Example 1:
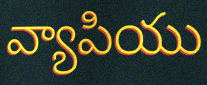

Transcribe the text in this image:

వ్యాపియు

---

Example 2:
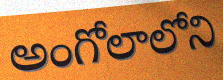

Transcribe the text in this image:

అంగోలాలోని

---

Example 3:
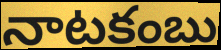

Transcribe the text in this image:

నాటకంబు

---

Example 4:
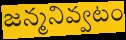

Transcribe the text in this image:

జన్మనివ్వటం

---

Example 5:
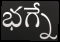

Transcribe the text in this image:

భగ్నే